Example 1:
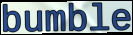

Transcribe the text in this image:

bumble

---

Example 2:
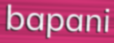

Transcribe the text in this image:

bapani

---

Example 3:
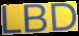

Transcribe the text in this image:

LBD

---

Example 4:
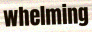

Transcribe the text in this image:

whelming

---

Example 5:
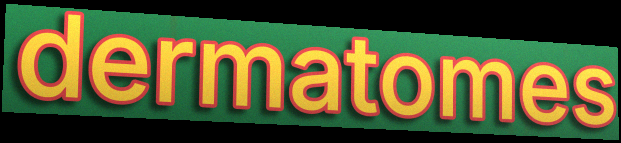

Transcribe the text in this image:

dermatomes